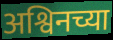
अश्विनच्या